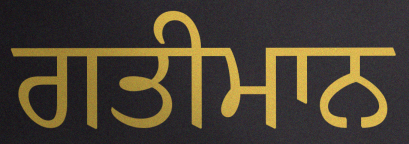
ਗਤੀਮਾਨ